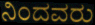
ನಿಂದವರು